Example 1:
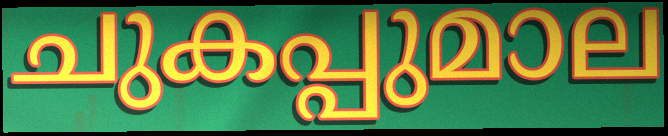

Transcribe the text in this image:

ചുകപ്പുമാല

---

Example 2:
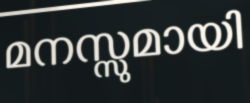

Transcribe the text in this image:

മനസ്സുമായി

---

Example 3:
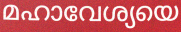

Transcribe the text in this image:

മഹാവേശ്യയെ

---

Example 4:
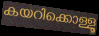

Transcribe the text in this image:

കയറിക്കൊള്ളൂ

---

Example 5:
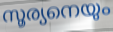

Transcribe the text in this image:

സൂര്യനെയും